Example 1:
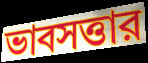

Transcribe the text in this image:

ভাবসত্তার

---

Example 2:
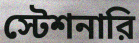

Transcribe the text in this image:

স্টেশনারি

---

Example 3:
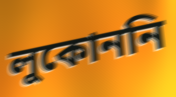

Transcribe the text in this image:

লুকোননি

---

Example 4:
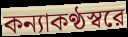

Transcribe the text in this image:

কন্যাকণ্ঠস্বরে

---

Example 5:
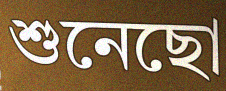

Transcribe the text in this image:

শুনেছো